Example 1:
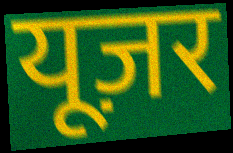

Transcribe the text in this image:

यूज़र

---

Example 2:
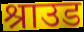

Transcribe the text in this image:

श्राउड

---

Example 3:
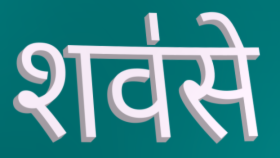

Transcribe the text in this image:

शव॑से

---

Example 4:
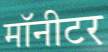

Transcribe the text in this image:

मॉनीटर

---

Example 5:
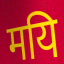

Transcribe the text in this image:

मयि